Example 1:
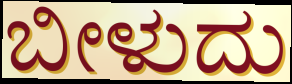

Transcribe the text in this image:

ಬೀಳುದು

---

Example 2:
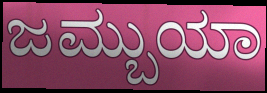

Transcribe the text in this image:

ಜಮ್ಬುಯಾ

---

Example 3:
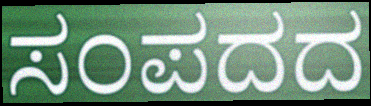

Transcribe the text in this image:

ಸಂಪದದ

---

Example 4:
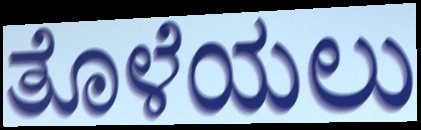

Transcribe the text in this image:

ತೊಳೆಯಲು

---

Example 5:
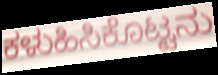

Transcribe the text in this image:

ಕಳುಹಿಸಿಕೊಟ್ಟನು